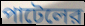
পাটেলের